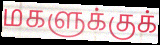
மகளுக்குக்